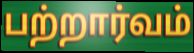
பற்றார்வம்